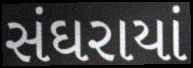
સંઘરાયાં